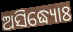
ଅସିଦ୍ଧ୍ୟୋଃ